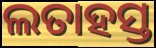
ଲତାହସ୍ତ